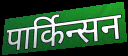
पार्किन्सन